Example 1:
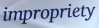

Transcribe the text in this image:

impropriety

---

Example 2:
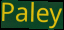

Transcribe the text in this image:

Paley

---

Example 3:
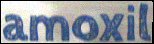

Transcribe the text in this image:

amoxil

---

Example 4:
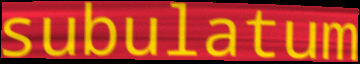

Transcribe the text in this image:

subulatum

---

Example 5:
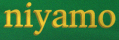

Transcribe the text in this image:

niyamo